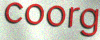
coorg